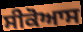
ਸੀਕੋਆਸ